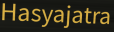
Hasyajatra